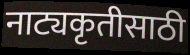
नाट्यकृतीसाठी